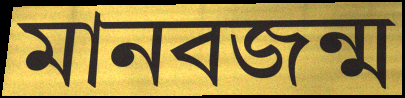
মানবজন্ম